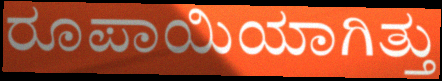
ರೂಪಾಯಿಯಾಗಿತ್ತು